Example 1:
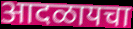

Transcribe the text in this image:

आदळायचा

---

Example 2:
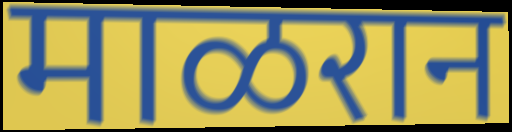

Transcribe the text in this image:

माळरान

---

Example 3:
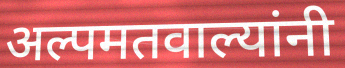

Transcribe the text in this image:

अल्पमतवाल्यांनी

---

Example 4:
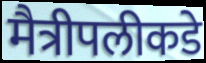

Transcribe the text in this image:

मैत्रीपलीकडे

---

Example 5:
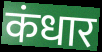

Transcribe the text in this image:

कंधार